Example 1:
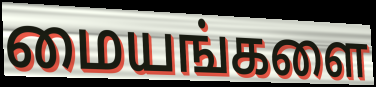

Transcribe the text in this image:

மையங்களை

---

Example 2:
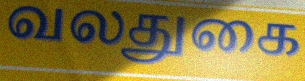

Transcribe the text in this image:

வலதுகை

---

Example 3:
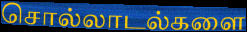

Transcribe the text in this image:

சொல்லாடல்களை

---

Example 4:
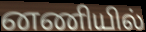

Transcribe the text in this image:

னணியில்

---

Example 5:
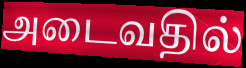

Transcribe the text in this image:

அடைவதில்